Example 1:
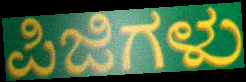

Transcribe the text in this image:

ಪಿಜಿಗಳು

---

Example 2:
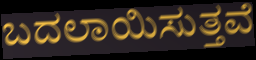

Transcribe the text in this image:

ಬದಲಾಯಿಸುತ್ತವೆ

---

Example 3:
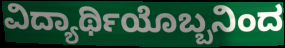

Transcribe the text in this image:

ವಿದ್ಯಾರ್ಥಿಯೊಬ್ಬನಿಂದ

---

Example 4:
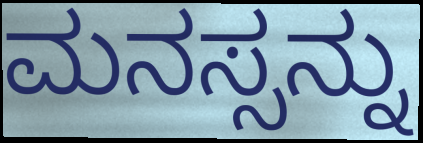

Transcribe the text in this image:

ಮನಸ್ಸನ್ನು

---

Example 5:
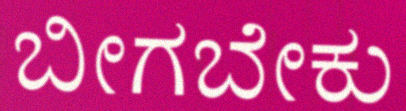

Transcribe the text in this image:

ಬೀಗಬೇಕು